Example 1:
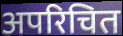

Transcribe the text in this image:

अपरिचित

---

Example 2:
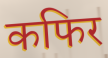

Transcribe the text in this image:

कफिर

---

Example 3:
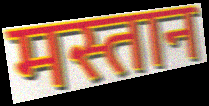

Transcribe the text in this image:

मस्तान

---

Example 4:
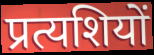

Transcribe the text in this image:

प्रत्यशियों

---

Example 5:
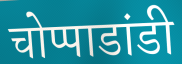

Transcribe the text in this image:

चोप्पाडांडी